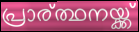
പ്രാര്ത്ഥനയ്ക്ക്